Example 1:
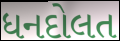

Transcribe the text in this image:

ધનદોલત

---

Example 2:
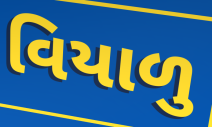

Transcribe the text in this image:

વિયાળુ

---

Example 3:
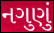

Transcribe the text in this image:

નગુણું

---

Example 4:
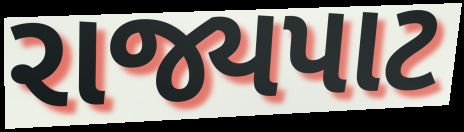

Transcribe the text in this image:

રાજ્યપાટ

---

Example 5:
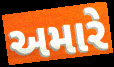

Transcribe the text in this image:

અમારે